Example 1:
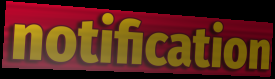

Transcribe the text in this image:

notification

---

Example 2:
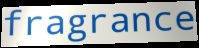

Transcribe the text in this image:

fragrance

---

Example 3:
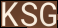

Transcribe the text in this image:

KSG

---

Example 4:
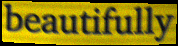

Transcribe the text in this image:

beautifully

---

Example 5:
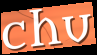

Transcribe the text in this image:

chu